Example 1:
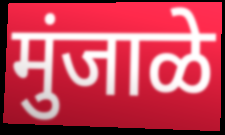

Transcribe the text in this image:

मुंजाळे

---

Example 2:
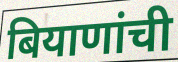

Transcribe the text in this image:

बियाणांची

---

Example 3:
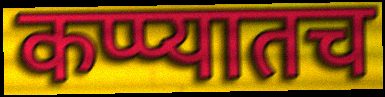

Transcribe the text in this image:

कप्प्यातच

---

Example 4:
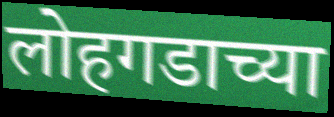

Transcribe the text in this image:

लोहगडाच्या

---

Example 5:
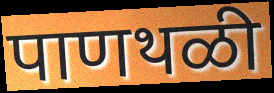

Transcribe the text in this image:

पाणथळी